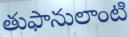
తుఫానులాంటి